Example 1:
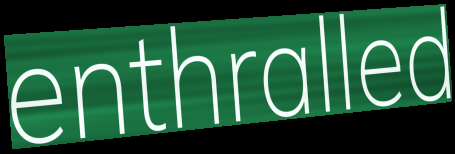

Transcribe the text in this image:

enthralled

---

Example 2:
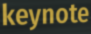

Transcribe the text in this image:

keynote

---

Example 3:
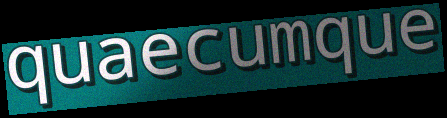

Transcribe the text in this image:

quaecumque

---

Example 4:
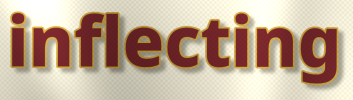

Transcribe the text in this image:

inflecting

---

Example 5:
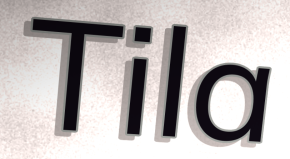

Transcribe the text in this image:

Tila